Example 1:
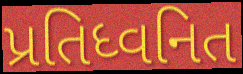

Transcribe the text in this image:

પ્રતિધ્વનિત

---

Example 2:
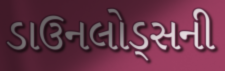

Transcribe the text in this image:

ડાઉનલોડ્સની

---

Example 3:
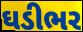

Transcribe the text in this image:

ઘડીભર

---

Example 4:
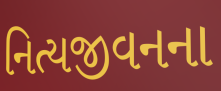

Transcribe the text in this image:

નિત્યજીવનના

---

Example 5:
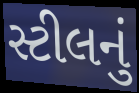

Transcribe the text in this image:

સ્ટીલનું